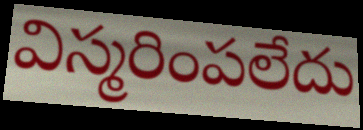
విస్మరింపలేదు